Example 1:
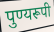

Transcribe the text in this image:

पुण्यरूपी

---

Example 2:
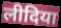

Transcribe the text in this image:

लीदिया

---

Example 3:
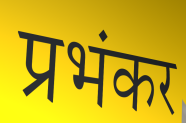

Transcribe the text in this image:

प्रभंकर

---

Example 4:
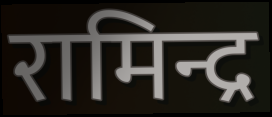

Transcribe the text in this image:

रामिन्द्र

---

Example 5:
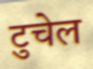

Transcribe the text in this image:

टुचेल